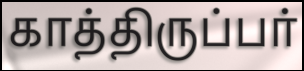
காத்திருப்பர்